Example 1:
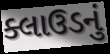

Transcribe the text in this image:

ક્લાઉડનું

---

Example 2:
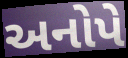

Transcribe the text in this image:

અનોપે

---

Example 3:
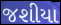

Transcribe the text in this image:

જશીયા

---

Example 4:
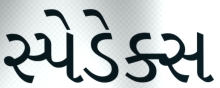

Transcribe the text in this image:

સ્પેડેક્સ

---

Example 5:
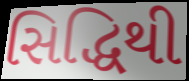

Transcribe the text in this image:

સિદ્ધિથી